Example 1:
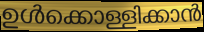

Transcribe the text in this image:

ഉൾക്കൊള്ളിക്കാൻ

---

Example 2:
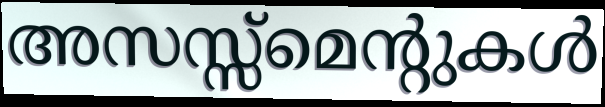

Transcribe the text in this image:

അസസ്സ്മെന്റുകൾ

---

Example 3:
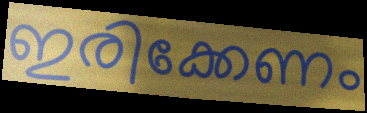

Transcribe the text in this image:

ഇരിക്കേണം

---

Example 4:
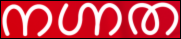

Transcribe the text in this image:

നഗ്നത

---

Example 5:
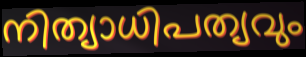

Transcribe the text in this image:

നിത്യാധിപത്യവും